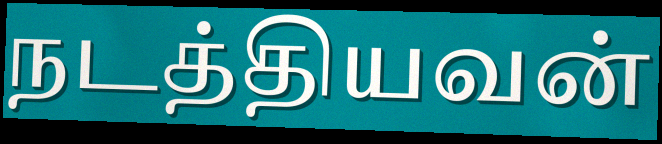
நடத்தியவன்